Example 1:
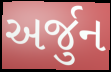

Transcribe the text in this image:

અર્જુન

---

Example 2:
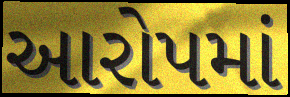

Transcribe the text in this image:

આરોપમાં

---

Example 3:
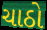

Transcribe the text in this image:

ચાઠો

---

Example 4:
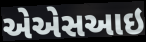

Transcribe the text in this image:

એએસઆઇ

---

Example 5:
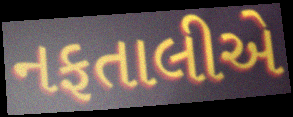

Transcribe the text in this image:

નફતાલીએ